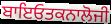
ਬਾਇਓਤਕਨਾਲੋਜੀ